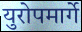
युरोपमार्गे